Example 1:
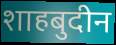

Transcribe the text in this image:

शाहबुदीन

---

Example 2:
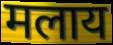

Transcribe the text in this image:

मलाय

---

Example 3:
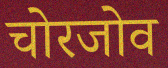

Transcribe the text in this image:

चोरजोव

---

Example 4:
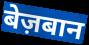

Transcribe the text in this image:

बेज़बान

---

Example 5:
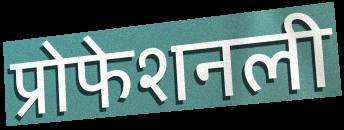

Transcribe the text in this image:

प्रोफेशनली